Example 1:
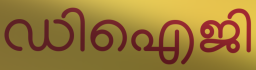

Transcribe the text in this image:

ഡിഐജി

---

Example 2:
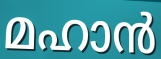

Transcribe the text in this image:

മഹാൻ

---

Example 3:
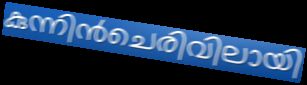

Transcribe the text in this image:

കുന്നിൻചെരിവിലായി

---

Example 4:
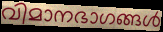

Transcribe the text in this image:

വിമാനഭാഗങ്ങൾ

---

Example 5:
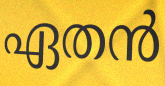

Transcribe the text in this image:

ഏതൻ